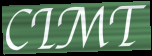
CIMT